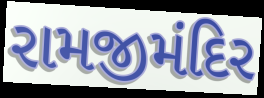
રામજીમંદિર